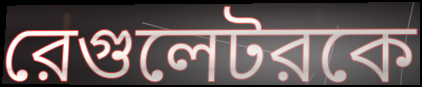
রেগুলেটরকে